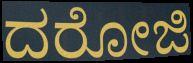
ದರೋಜಿ